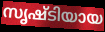
സൃഷ്ടിയായ